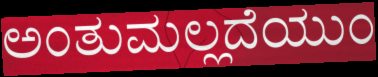
ಅಂತುಮಲ್ಲದೆಯುಂ